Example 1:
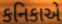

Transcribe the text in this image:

કનિકાએ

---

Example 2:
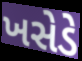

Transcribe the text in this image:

ખસેડે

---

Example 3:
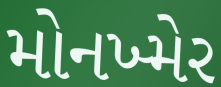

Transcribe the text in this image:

મોનખ્મેર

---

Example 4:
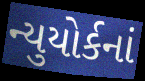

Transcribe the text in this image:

ન્યુયોર્કનાં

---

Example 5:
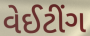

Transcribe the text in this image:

વેઈટીંગ